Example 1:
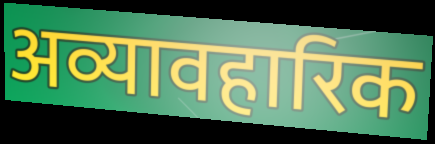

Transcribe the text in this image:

अव्यावहारिक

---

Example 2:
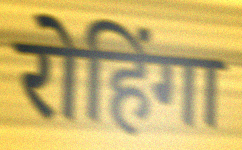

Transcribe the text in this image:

रोहिंगा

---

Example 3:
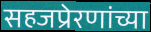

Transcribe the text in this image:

सहजप्रेरणांच्या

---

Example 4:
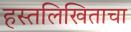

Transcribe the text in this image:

हस्तलिखिताचा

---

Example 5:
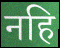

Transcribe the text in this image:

नहि